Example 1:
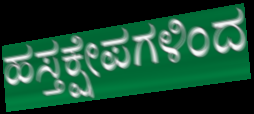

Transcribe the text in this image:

ಹಸ್ತಕ್ಷೇಪಗಳಿಂದ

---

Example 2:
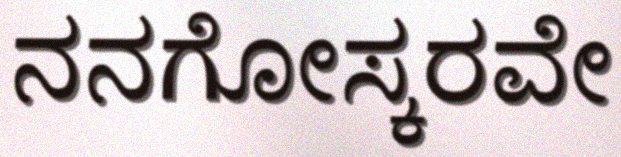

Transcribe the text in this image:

ನನಗೋಸ್ಕರವೇ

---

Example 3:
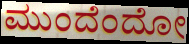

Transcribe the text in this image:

ಮುಂದೆಂದೋ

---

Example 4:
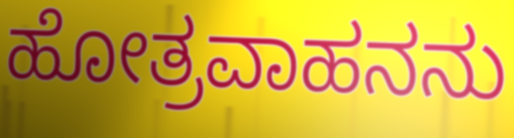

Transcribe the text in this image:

ಹೋತ್ರವಾಹನನು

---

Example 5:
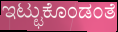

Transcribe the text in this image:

ಇಟ್ಟುಕೊಂಡಂತೆ